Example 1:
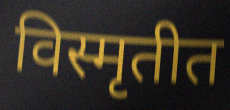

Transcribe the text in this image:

विस्मृतीत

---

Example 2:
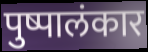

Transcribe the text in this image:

पुष्पालंकार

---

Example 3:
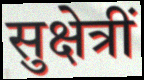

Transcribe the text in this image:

सुक्षेत्रीं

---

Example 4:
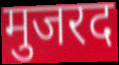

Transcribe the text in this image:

मुजरद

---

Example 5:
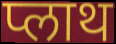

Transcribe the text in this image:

प्लाथ